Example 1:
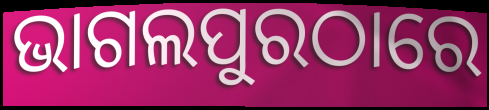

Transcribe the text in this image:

ଭାଗଲପୁରଠାରେ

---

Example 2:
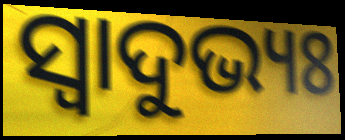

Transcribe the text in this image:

ସ୍ବାଦୁଭ୍ୟଃ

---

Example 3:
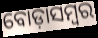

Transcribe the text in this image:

ବୋଡ଼ାସମ୍ବର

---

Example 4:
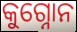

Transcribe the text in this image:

କୁଗ୍ନୋନ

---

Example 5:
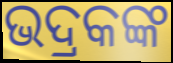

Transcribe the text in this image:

ଭଦ୍ରକଙ୍କ